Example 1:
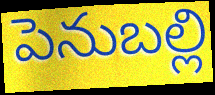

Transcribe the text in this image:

పెనుబల్లి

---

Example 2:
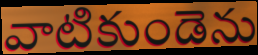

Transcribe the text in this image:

వాటికుండెను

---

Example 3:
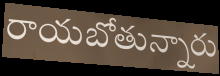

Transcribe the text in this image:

రాయబోతున్నారు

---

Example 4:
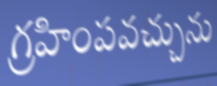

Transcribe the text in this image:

గ్రహింపవచ్చును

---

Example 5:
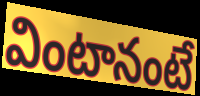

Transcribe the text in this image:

వింటానంటే